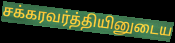
சக்கரவர்த்தியினுடைய